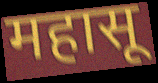
महासू